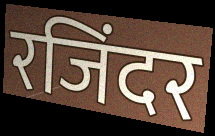
रजिंदर